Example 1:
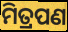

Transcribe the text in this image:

ମିତ୍ରପଣ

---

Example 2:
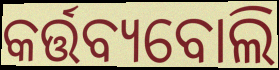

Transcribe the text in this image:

କର୍ତ୍ତବ୍ୟବୋଲି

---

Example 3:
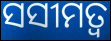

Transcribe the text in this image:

ସସୀମତ୍ୱ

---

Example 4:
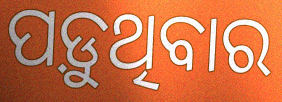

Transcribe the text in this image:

ପଡ଼ୁଥିବାର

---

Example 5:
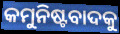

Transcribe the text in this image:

କମୁନିଷ୍ଟବାଦକୁ